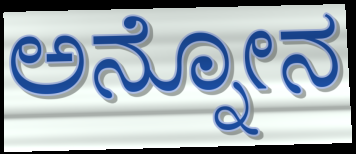
ಅನ್ನೋನ